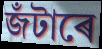
জঁটাৰে